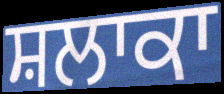
ਸ਼ਲਾਕਾ